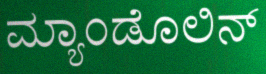
ಮ್ಯಾಂಡೊಲಿನ್